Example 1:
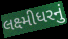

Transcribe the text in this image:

લક્ષ્મીધરનું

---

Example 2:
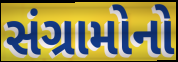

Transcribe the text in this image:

સંગ્રામોનો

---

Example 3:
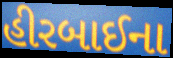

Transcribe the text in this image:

હીરબાઈના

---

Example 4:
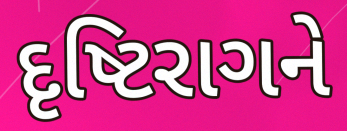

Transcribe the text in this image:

દૃષ્ટિરાગને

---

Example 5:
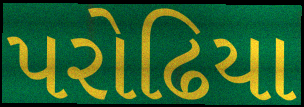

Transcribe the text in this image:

પરોઢિયા